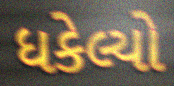
ધકેલ્યો